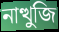
নাত্থুজি